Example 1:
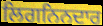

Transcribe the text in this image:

ਲਿਗਨਿਨਦਾਰ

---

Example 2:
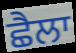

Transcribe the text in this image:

ਛੈਲਾ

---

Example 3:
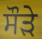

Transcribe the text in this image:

ਸੌੜੇ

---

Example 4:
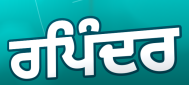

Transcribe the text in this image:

ਰਪਿੰਦਰ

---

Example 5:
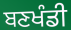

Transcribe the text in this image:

ਬਣਖੰਡੀ